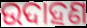
ଉଦାହଣ